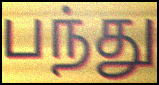
பந்து